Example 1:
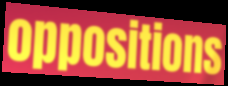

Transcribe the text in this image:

oppositions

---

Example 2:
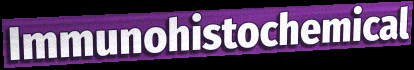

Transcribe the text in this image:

Immunohistochemical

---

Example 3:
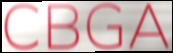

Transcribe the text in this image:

CBGA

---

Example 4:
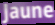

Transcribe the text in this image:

Jaune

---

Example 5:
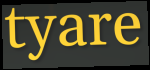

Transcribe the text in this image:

tyare